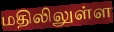
மதிலிலுள்ள